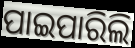
ପାଇପାରିଲି